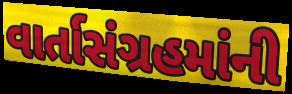
વાર્તાસંગ્રહમાંની